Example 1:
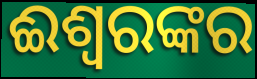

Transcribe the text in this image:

ଈଶ୍ୱରଙ୍କର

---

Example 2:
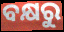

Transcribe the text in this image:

ବକ୍ଷରୁ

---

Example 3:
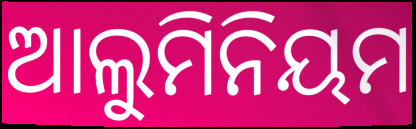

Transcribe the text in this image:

ଆଲୁମିନିୟମ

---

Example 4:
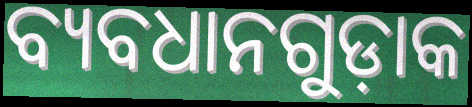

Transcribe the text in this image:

ବ୍ୟବଧାନଗୁଡ଼ାକ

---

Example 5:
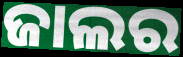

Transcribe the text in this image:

ଜାଲର